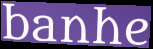
banhe